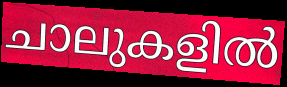
ചാലുകളിൽ